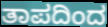
ತಾಪದಿಂದ